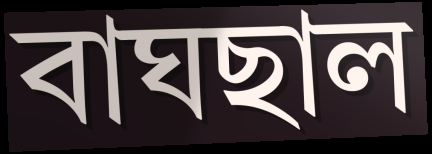
বাঘছাল